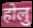
होलु